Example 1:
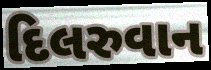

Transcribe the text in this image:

દિલરુવાન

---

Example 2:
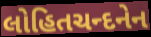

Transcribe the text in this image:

લોહિતચન્દનેન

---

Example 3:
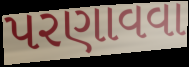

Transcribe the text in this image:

પરણાવવા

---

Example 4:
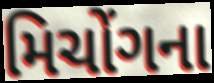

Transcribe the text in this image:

મિચોંગના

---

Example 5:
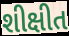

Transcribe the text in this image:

શીક્ષીત